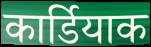
कार्डियाक